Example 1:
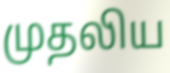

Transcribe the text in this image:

முதலிய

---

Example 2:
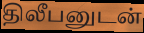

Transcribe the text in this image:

திலீபனுடன்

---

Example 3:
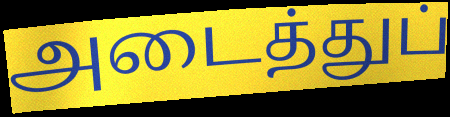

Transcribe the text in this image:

அடைத்துப்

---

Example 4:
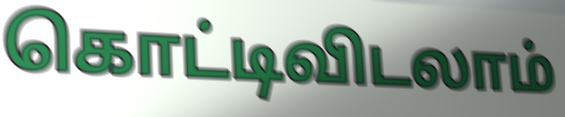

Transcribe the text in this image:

கொட்டிவிடலாம்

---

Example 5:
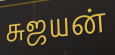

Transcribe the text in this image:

சுஜயன்